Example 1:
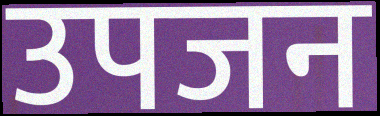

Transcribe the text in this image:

उपजन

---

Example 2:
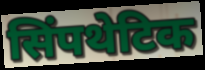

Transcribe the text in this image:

सिंपथेटिक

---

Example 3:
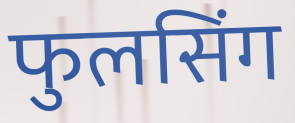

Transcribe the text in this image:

फुलसिंग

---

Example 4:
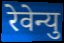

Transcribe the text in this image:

रेवेन्यु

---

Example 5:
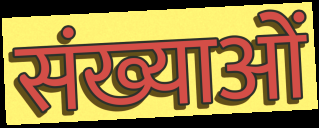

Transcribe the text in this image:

संख्याओं